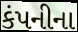
કંપનીના